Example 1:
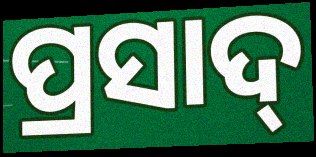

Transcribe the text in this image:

ପ୍ରସାଦ୍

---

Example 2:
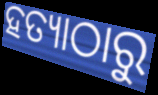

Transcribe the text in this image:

ହତ୍ୟାଠାରୁ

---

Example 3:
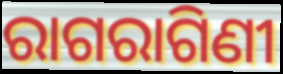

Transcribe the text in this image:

ରାଗରାଗିଣୀ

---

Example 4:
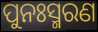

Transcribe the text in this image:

ପୁନଃସ୍ମରଣ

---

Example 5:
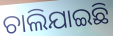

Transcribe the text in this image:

ଚାଲିଯାଇଛି